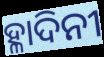
ହ୍ଳାଦିନୀ